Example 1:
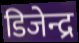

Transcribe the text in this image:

डिजेन्द्र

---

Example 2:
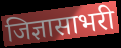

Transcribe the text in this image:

जिज्ञासाभरी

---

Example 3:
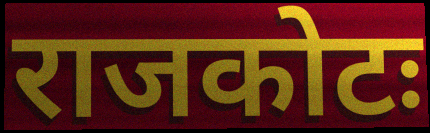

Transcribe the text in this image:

राजकोटः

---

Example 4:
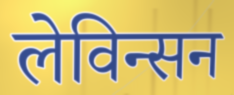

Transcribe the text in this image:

लेविन्सन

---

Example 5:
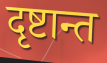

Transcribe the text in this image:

दृष्टान्त